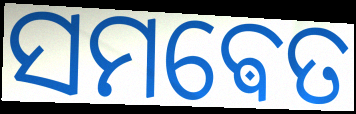
ସମଵେତ